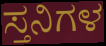
ಸ್ತನಿಗಳ